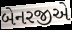
બેનરજીએ